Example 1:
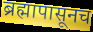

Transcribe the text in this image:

ब्रह्मापासूनच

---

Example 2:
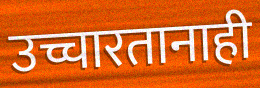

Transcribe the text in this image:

उच्चारतानाही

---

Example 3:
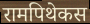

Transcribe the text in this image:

रामपिथेकस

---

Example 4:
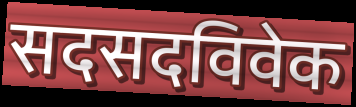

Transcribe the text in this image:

सदसदविवेक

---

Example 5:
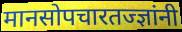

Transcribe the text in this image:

मानसोपचारतज्ज्ञांनी